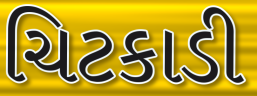
ચિટકાડી